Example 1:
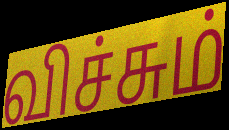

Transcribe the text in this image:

விச்சும்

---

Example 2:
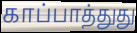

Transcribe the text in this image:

காப்பாத்துது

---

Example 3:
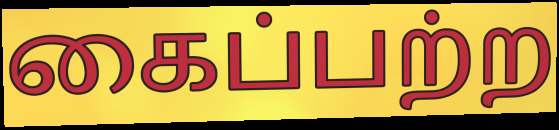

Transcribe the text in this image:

கைப்பற்ற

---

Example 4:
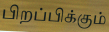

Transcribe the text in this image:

பிறப்பிக்கும்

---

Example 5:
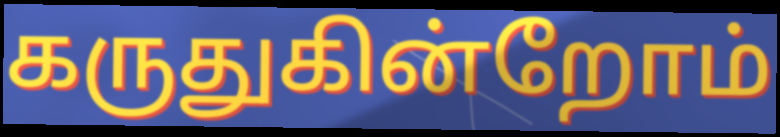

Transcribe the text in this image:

கருதுகின்றோம்